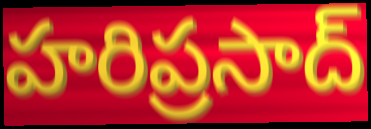
హరిప్రసాద్